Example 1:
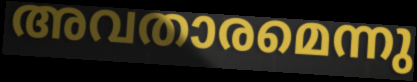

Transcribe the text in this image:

അവതാരമെന്നു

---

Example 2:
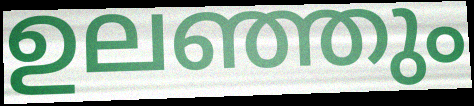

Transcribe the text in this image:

ഉലഞ്ഞും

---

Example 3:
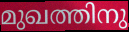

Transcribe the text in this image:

മുഖത്തിനു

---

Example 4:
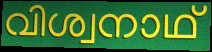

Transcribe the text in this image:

വിശ്വനാഥ്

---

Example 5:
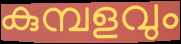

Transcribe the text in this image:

കുമ്പളവും